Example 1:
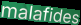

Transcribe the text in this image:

malafides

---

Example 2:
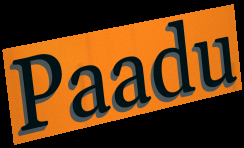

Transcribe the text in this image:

Paadu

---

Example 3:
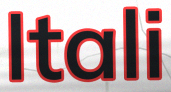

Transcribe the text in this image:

Itali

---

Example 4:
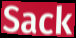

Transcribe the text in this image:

Sack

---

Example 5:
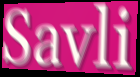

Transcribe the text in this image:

Savli